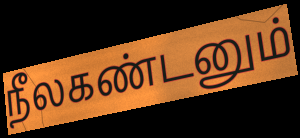
நீலகண்டனும்